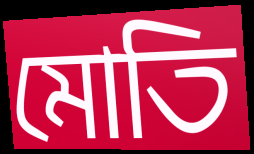
মোতি